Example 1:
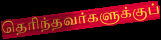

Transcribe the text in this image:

தெரிந்தவர்களுக்குப்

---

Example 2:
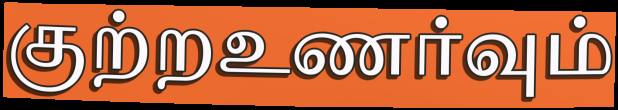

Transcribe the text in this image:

குற்றஉணர்வும்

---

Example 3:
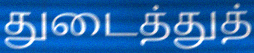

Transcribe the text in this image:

துடைத்துத்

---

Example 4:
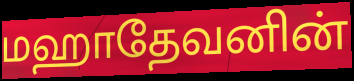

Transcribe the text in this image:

மஹாதேவனின்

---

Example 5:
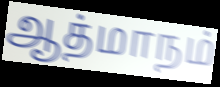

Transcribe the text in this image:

ஆத்மாநம்